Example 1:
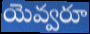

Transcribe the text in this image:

యెవ్వరూ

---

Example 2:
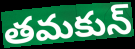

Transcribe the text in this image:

తమకున్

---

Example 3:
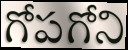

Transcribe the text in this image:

గోపగోని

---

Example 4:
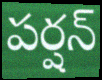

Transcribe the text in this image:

పర్షన్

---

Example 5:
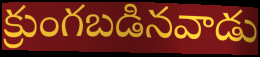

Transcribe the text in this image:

క్రుంగబడినవాడు